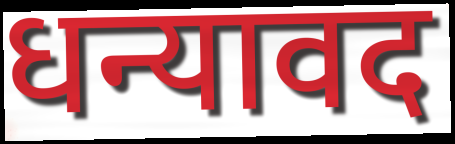
धन्यावद